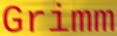
Grimm